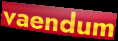
vaendum